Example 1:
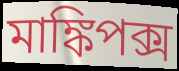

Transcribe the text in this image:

মাঙ্কিপক্স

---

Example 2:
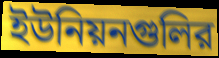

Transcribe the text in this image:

ইউনিয়নগুলির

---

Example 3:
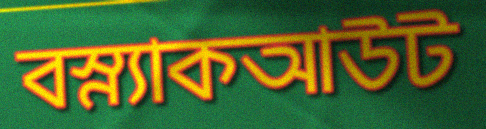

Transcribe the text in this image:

বস্ন্যাকআউট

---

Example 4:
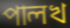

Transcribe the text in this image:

পালখ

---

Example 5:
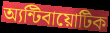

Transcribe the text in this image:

অ্যন্টিবায়োটিক